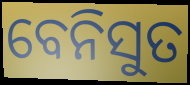
ବେନିସୁତ